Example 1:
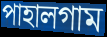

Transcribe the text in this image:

পাহালগাম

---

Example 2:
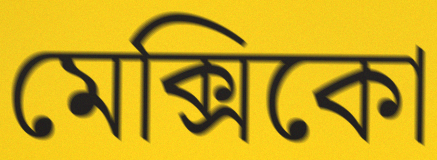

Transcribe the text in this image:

মেক্সিকো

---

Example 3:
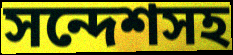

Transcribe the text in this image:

সন্দেশসহ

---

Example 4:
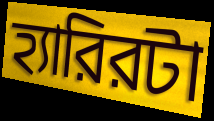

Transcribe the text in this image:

হ্যারিরটা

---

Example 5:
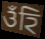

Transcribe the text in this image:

ওঁহি